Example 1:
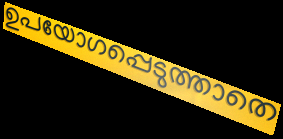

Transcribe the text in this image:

ഉപയോഗപ്പെടുത്താതെ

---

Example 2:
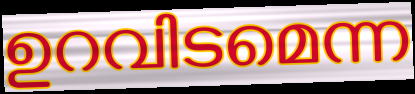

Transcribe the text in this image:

ഉറവിടമെന്ന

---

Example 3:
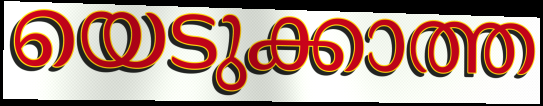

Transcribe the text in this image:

യെടുക്കാത്ത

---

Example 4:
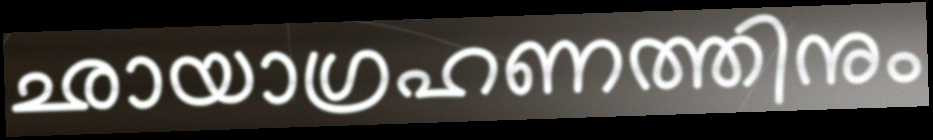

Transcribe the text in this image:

ഛായാഗ്രഹണത്തിനും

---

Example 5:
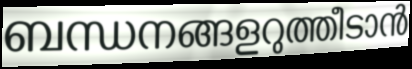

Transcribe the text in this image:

ബന്ധനങ്ങളറുത്തീടാൻ